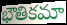
భౌతికమా